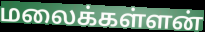
மலைக்கள்ளன்